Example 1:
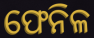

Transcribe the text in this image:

ଫେନିଳ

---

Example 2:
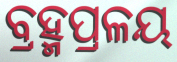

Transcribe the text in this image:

ବ୍ରହ୍ମପ୍ରଳୟ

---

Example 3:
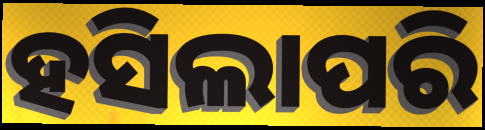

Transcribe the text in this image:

ହସିଲାପରି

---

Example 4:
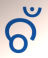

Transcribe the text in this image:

ଚଁ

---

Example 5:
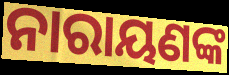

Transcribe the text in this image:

ନାରାୟଣଙ୍କ